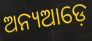
ଅନ୍ୟଆଡ଼େ